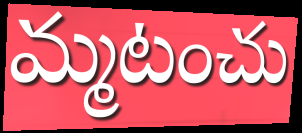
మ్మటంచు